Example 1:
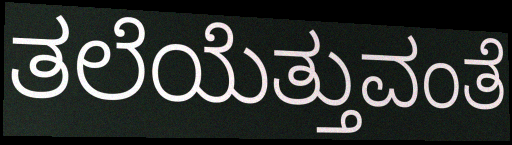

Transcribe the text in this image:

ತಲೆಯೆತ್ತುವಂತೆ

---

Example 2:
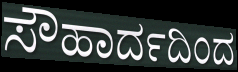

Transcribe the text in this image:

ಸೌಹಾರ್ದದಿಂದ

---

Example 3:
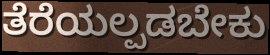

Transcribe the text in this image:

ತೆರೆಯಲ್ಪಡಬೇಕು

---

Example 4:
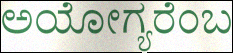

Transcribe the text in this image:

ಅಯೋಗ್ಯರೆಂಬ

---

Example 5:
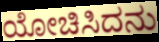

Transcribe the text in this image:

ಯೋಚಿಸಿದನು